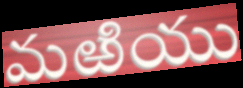
మఱియు